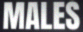
MALES